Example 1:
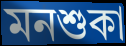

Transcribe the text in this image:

মনশুকা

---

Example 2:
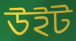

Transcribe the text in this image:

উইট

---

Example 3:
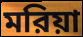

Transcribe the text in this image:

মরিয়া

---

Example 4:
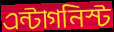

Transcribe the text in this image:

এন্টাগনিস্ট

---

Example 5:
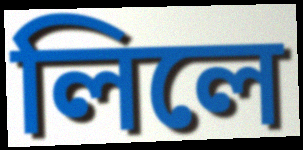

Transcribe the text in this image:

লিলে